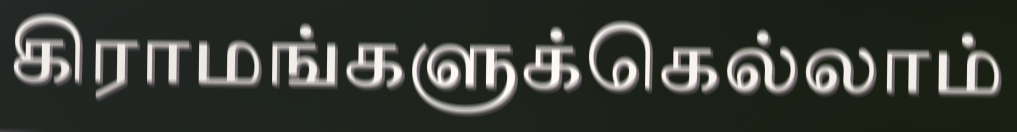
கிராமங்களுக்கெல்லாம்